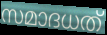
സമാദധത്